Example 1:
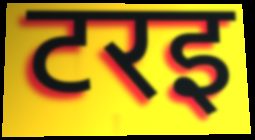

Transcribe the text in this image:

टरइ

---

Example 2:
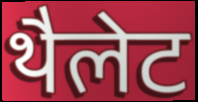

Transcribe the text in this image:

थैलेट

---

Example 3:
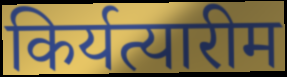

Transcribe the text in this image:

किर्यत्यारीम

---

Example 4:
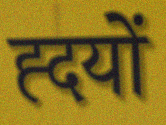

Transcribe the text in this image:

ह्दयों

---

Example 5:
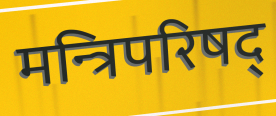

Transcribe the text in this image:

मन्त्रिपरिषद्